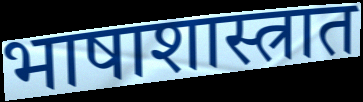
भाषाशास्त्रात